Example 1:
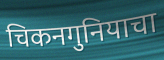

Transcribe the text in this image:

चिकनगुनियाचा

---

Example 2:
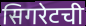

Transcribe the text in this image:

सिगरेटची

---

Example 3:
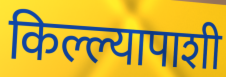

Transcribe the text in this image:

किल्ल्यापाशी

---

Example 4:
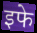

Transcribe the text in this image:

इफे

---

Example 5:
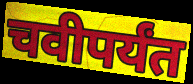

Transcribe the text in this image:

चवीपर्यंत